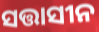
ସତ୍ତାସୀନ